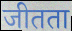
जीतता